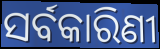
ସର୍ବକାରିଣୀ